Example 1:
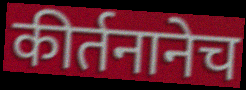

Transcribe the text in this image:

कीर्तनानेच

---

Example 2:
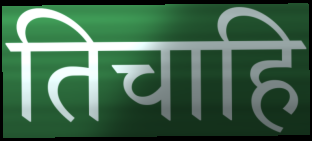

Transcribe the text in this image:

तिचाहि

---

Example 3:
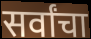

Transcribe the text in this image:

सर्वांचा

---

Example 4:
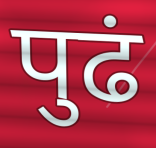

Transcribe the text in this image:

पुढं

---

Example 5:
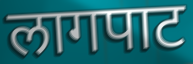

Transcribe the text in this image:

लागपाट